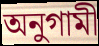
অনুগামী